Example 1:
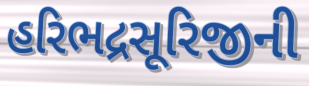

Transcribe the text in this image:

હરિભદ્રસૂરિજીની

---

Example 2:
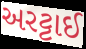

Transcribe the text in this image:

અરટ્ટાઈ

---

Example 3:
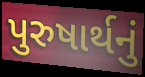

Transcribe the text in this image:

પુરુષાર્થનું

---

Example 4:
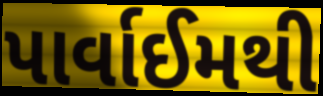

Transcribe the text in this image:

પાર્વાઈમથી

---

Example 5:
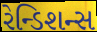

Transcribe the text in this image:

રેન્ડિશન્સ